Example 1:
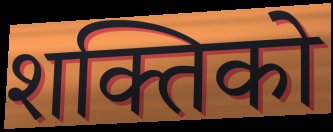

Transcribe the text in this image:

शक्तिको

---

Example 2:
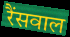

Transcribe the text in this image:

रैंसवाल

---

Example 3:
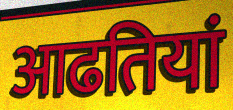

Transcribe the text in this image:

आढतियां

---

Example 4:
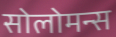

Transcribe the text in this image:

सोलोमन्स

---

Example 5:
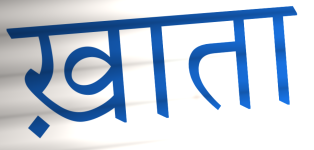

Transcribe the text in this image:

ख़ाता